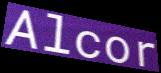
Alcor